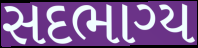
સદભાગ્ય